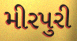
મીરપુરી